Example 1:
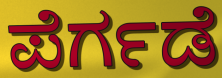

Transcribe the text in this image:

ಪೆರ್ಗಡೆ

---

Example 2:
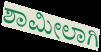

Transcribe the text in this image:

ಶಾಮೀಲಾಗಿ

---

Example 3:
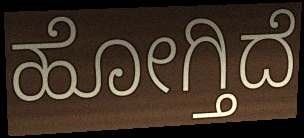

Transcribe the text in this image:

ಹೋಗ್ತಿದೆ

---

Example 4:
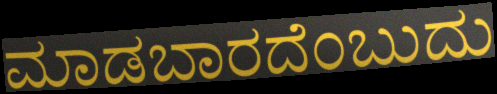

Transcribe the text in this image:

ಮಾಡಬಾರದೆಂಬುದು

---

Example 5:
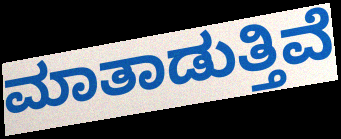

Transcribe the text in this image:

ಮಾತಾಡುತ್ತಿವೆ